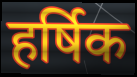
हर्षिक